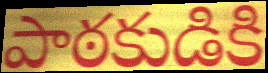
పాఠకుడికి